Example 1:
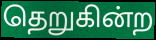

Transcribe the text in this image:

தெறுகின்ற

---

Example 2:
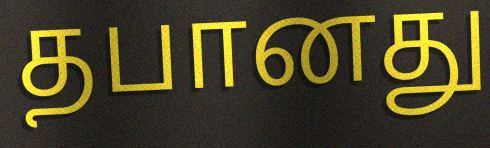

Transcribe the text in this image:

தபானது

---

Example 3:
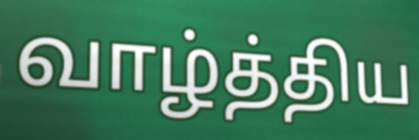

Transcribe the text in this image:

வாழ்த்திய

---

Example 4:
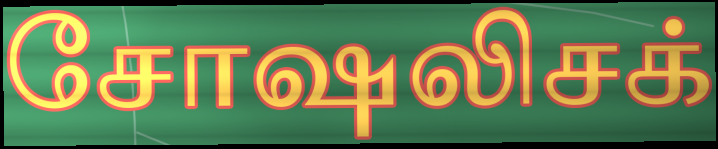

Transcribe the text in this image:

சோஷலிசக்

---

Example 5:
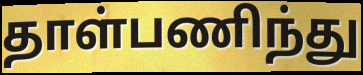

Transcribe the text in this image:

தாள்பணிந்து